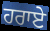
ਹਰਾਏ